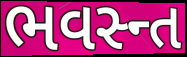
ભવસ્ન્ત